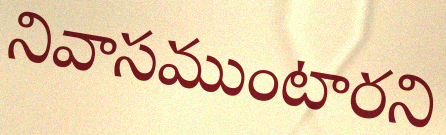
నివాసముంటారని